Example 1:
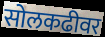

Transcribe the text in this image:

सोलकढीवर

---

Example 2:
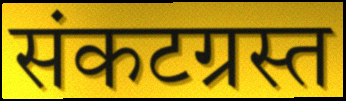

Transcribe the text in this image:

संकटग्रस्त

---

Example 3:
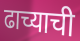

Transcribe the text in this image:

ढाच्याची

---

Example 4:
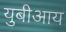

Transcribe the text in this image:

युबीआय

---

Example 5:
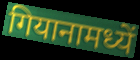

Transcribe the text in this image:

गियानामध्यें